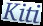
Kiti